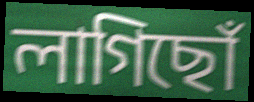
লাগিছোঁ